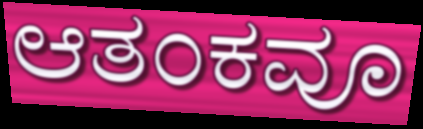
ಆತಂಕವೂ